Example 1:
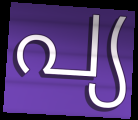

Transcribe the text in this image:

പ്യ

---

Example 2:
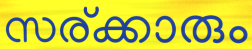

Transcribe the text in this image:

സര്ക്കാരും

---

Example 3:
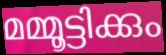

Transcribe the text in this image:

മമ്മൂട്ടിക്കും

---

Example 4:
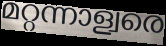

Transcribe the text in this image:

മറ്റന്നാള്വരെ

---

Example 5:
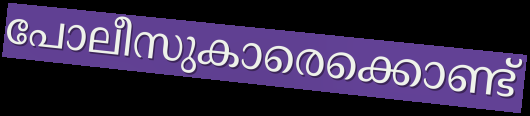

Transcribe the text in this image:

പോലീസുകാരെക്കൊണ്ട്